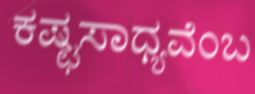
ಕಷ್ಟಸಾಧ್ಯವೆಂಬ